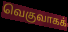
வெகுவாகக்